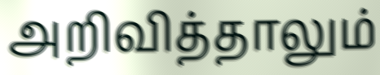
அறிவித்தாலும்